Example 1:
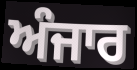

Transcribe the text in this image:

ਅੰਜਾਰ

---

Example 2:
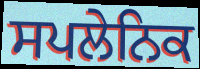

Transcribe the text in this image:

ਸਪਲੇਨਿਕ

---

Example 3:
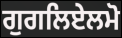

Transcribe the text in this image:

ਗੁਗਲਿਏਲਮੋ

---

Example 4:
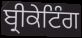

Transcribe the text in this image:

ਬ੍ਰੀਕੇਟਿੰਗ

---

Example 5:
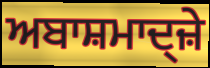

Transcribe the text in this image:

ਅਬਾਸ਼ਮਾਦ੍ਜ਼ੇ